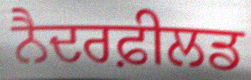
ਨੈਦਰਫ਼ੀਲਡ